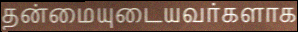
தன்மையுடையவர்களாக